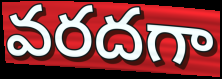
వరదగా